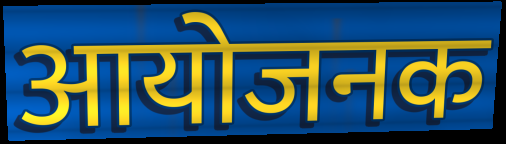
आयोजनक